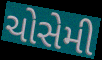
ચોસેમી